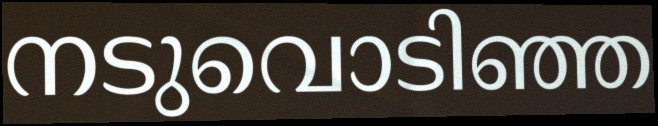
നടുവൊടിഞ്ഞ